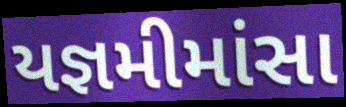
યજ્ઞમીમાંસા